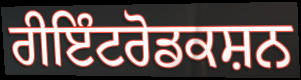
ਰੀਇੰਟਰੋਡਕਸ਼ਨ